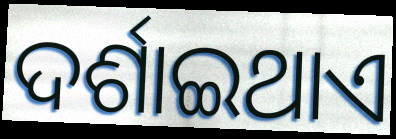
ଦର୍ଶାଇଥାଏ